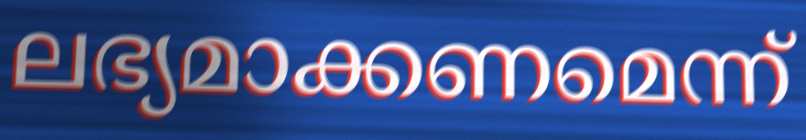
ലഭ്യമാക്കണമെന്ന്